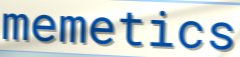
memetics